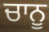
ਚਾਨੂ